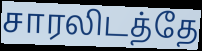
சாரலிடத்தே